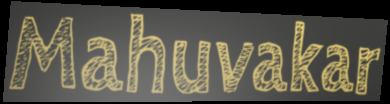
Mahuvakar